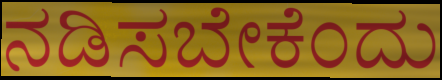
ನಡಿಸಬೇಕೆಂದು